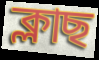
ক্লাছ